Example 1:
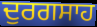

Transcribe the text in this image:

ਦੁਰਗਸਾਹ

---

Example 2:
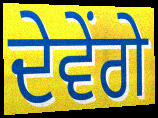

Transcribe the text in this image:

ਦੇਵੇਂਗੇ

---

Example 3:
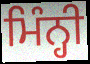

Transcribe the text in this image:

ਮਿੰਨ੍ਹੀ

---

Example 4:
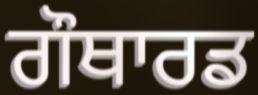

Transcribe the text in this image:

ਗੌਥਾਰਡ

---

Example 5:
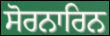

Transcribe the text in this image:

ਸੋਰਨਾਰਿਨ